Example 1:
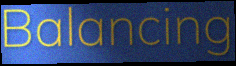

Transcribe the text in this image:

Balancing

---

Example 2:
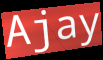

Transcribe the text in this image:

Ajay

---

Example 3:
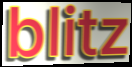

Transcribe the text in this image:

blitz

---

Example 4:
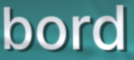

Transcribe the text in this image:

bord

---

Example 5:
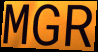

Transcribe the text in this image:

MGR